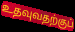
உதவுவதற்குப்